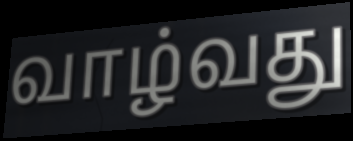
வாழ்வது